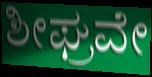
ಶೀಘ್ರವೇ